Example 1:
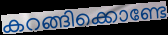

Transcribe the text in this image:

കറങ്ങിക്കൊണ്ടേ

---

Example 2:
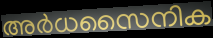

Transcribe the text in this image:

അർധസൈനിക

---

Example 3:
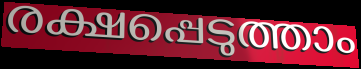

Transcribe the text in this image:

രക്ഷപ്പെടുത്താം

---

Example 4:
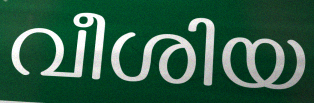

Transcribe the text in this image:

വീശിയ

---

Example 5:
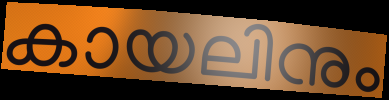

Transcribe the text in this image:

കായലിനും